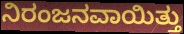
ನಿರಂಜನವಾಯಿತ್ತು